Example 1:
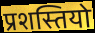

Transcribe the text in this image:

प्रशस्तियो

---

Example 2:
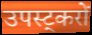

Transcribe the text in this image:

उपस्ट्करों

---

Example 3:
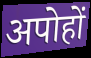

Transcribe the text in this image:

अपोहों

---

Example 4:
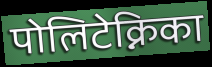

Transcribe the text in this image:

पोलिटेक्निका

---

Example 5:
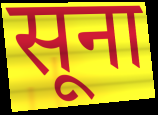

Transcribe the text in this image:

सूना